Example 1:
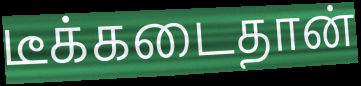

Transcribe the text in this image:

டீக்கடைதான்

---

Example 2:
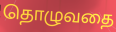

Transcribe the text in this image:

தொழுவதை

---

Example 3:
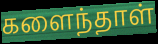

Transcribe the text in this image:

களைந்தாள்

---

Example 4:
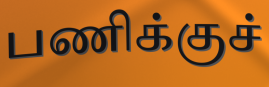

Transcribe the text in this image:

பணிக்குச்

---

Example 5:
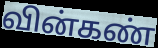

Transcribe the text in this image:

வின்கண்